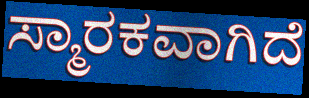
ಸ್ಮಾರಕವಾಗಿದೆ